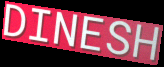
DINESH